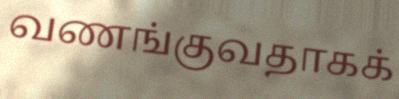
வணங்குவதாகக்